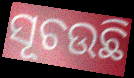
ସୂଚଉଛି